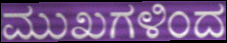
ಮುಖಗಳಿಂದ